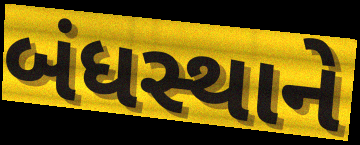
બંધસ્થાને